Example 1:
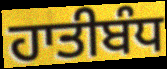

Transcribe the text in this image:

ਹਾਤੀਬੰਧ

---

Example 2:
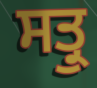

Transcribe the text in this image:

ਸਤ੍ਰੁ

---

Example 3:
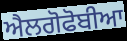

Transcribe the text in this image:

ਐਲਗੋਫੋਬੀਆ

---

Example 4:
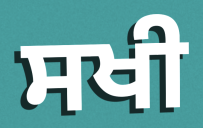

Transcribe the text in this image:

ਸਖੀ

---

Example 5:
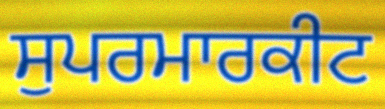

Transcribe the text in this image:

ਸੁਪਰਮਾਰਕੀਟ